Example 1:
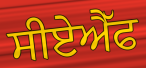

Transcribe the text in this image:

ਸੀਏਐੱਫ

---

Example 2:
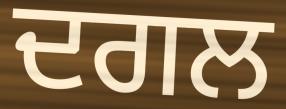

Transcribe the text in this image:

ਦਗਲ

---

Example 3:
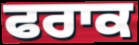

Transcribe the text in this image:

ਫਰਾਕ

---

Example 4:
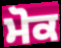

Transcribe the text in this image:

ਮੋਕ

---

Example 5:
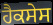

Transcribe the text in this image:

ਹੈਕਸੇਸ